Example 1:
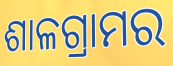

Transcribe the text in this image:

ଶାଳଗ୍ରାମର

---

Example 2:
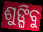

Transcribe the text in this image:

ଶୁଙ୍ଘିବୁ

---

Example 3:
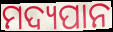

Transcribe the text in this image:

ମଦ୍ୟପାନ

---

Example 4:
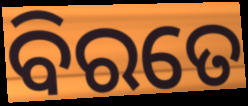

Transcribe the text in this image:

ବିରତେ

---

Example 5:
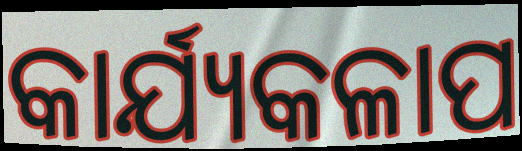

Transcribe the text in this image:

କାର୍ଯ୍ୟକଳାପ